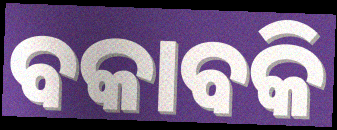
ବକାବକି